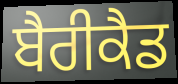
ਬੈਰੀਕੈਡ